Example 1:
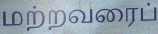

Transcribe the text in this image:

மற்றவரைப்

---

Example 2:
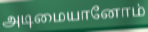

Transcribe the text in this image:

அடிமையானோம்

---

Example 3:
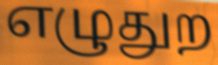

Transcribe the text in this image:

எழுதுற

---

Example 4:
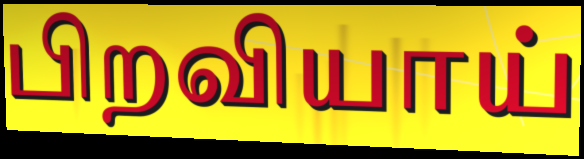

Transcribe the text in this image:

பிறவியாய்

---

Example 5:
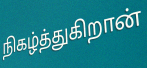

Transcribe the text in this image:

நிகழ்த்துகிறான்